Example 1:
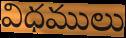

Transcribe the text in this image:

విధములు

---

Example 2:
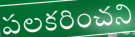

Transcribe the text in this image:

పలకరించని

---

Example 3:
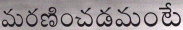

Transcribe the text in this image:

మరణించడమంటే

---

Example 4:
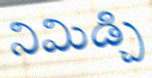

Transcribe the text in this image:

నిమిడ్చి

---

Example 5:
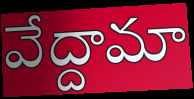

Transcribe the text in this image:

వేద్దామా